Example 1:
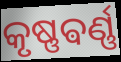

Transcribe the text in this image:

କୃଷ୍ଣଵର୍ଣ୍ଣ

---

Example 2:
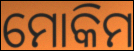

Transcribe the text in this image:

ମୋକିମ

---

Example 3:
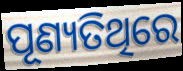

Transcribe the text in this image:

ପୂଣ୍ୟତିଥିରେ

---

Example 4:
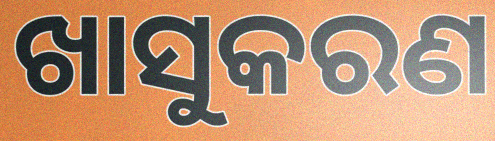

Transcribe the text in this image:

ଖାସୁକରଣ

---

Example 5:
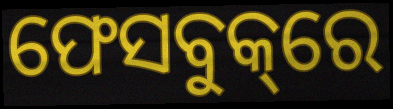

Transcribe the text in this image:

ଫେସବୁକ୍‌ରେ